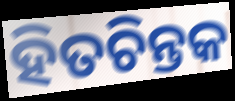
ହିତଚିନ୍ତକ